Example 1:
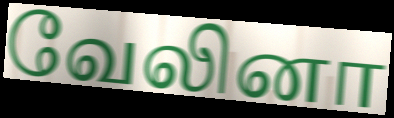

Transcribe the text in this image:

வேலினா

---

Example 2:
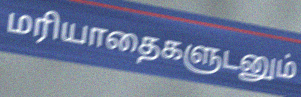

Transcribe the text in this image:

மரியாதைகளுடனும்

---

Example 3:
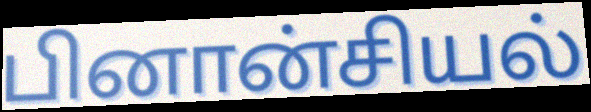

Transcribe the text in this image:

பினான்சியல்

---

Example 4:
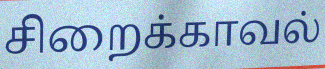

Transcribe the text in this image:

சிறைக்காவல்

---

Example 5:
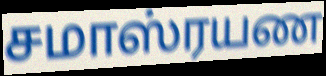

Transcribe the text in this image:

சமாஸ்ரயண